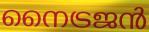
നൈട്രജൻ